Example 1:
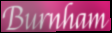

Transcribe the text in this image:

Burnham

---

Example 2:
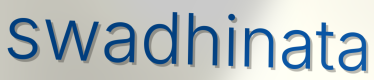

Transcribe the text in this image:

swadhinata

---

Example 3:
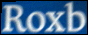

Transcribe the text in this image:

Roxb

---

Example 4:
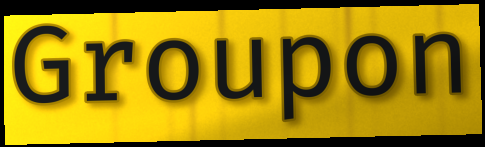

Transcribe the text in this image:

Groupon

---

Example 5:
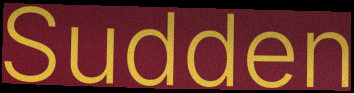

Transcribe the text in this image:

Sudden